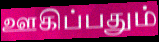
ஊகிப்பதும்